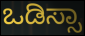
ಒಡಿಸ್ಸಾ